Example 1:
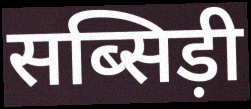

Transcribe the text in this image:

सब्सिड़ी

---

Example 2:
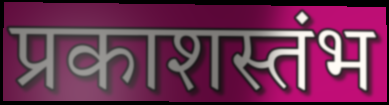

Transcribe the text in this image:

प्रकाशस्तंभ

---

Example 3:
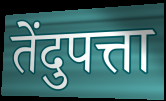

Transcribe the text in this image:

तेंदुपत्ता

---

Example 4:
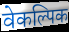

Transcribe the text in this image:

वेकल्पिक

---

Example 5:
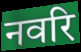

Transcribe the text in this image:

नवरि